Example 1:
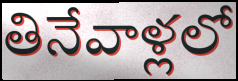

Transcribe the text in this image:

తినేవాళ్లలో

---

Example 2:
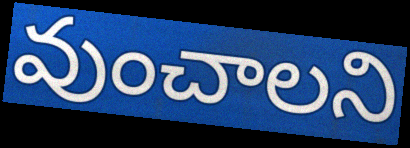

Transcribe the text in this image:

వుంచాలని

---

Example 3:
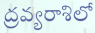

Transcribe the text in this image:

ద్రవ్యరాశిలో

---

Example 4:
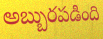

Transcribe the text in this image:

అబ్బురపడింది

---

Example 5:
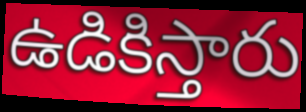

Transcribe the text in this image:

ఉడికిస్తారు